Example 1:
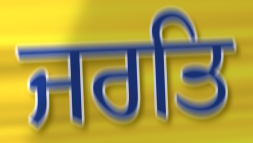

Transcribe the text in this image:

ਜਰਤਿ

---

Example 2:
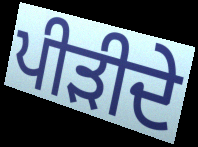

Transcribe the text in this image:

ਪੀੜੀਦੇ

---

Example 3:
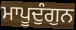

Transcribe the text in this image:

ਮਾਪੂਦੁੰਗੁਨ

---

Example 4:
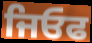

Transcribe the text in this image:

ਜਿਓਫ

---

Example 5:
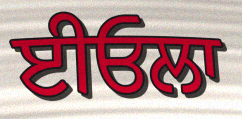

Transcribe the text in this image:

ਈਓਲਾ